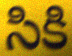
సికి